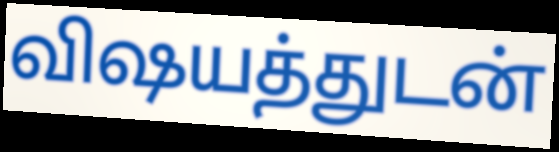
விஷயத்துடன்